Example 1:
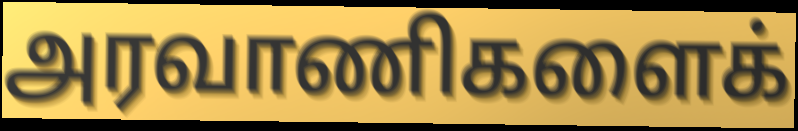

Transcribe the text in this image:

அரவாணிகளைக்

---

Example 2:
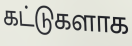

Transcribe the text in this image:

கட்டுகளாக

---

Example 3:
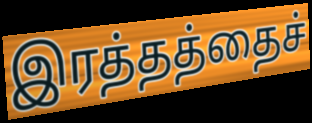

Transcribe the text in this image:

இரத்தத்தைச்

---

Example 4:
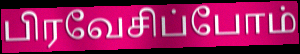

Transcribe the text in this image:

பிரவேசிப்போம்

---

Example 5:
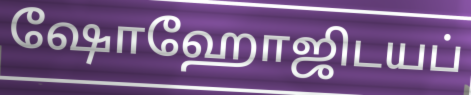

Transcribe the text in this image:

ஷோஹோஜிடயப்